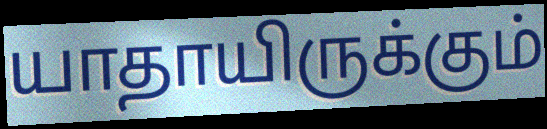
யாதாயிருக்கும்